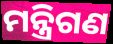
ମନ୍ତ୍ରିଗଣ